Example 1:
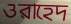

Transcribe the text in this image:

ওৱাহেদ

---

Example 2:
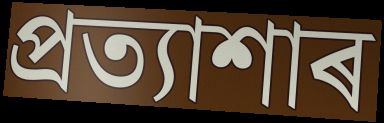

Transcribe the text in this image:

প্ৰত্যাশাৰ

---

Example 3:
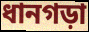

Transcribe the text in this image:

ধানগড়া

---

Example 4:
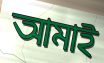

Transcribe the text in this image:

আমাই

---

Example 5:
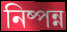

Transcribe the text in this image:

নিষ্পন্ন